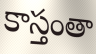
కాస్తంతా